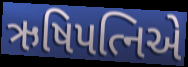
ઋષિપત્નિએ